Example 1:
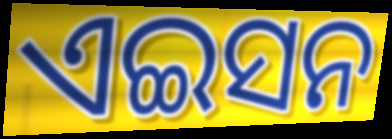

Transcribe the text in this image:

ଏଇସନ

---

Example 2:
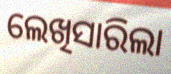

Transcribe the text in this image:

ଲେଖିସାରିଲା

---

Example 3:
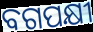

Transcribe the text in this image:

ବଗପକ୍ଷୀ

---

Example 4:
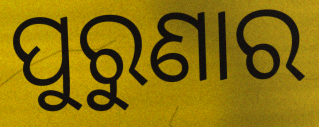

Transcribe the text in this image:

ପୁରୁଣାର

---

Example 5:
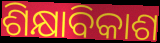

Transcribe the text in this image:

ଶିକ୍ଷାବିକାଶ